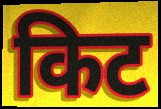
किट